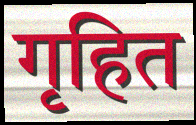
गृहित